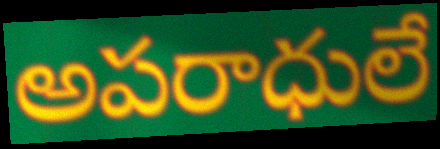
అపరాధులే